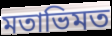
মতাভিমত